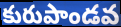
కురుపాండవ